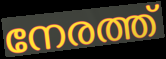
നേരത്ത്